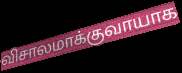
விசாலமாக்குவாயாக